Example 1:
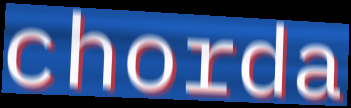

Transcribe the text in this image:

chorda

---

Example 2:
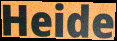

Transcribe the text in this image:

Heide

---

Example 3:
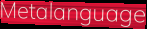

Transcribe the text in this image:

Metalanguage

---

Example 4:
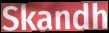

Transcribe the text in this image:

Skandh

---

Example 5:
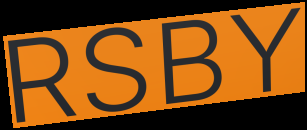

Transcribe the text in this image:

RSBY